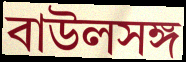
বাউলসঙ্গ